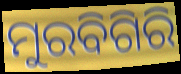
ମୁରବିଗିରି